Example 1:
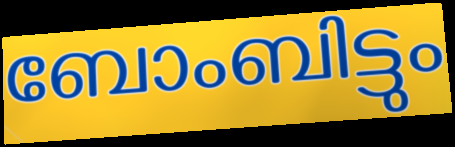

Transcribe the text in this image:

ബോംബിട്ടും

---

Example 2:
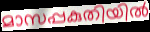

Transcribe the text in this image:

മാസപ്പകുതിയിൽ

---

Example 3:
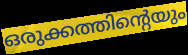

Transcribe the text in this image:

ഒരുക്കത്തിന്റെയും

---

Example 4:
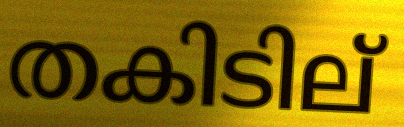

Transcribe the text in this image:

തകിടില്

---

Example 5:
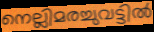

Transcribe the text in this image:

നെല്ലിമരച്ചുവട്ടിൽ